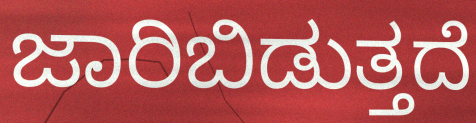
ಜಾರಿಬಿಡುತ್ತದೆ